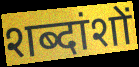
शब्दांशों